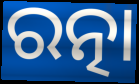
ରତ୍ନା